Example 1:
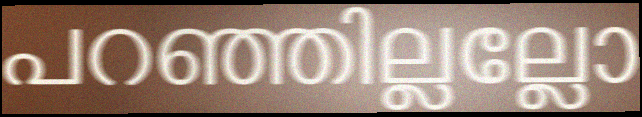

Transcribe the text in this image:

പറഞ്ഞില്ലല്ലോ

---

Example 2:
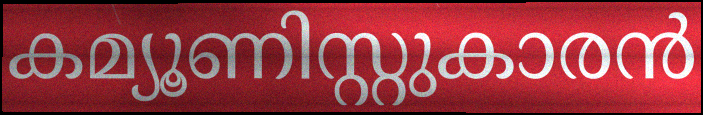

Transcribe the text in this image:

കമ്യൂണിസ്റ്റുകാരൻ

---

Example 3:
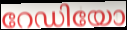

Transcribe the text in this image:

റേഡിയോ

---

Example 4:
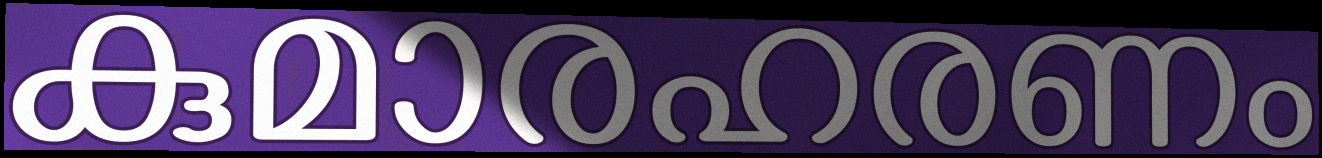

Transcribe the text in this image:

കുമാരഹരണം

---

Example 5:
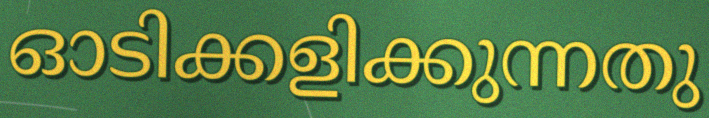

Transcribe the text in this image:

ഓടിക്കളിക്കുന്നതു